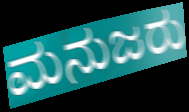
ಮನುಜರು